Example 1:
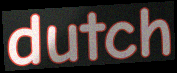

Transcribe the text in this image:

dutch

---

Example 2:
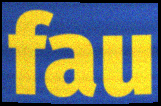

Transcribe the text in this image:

fau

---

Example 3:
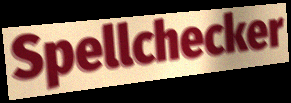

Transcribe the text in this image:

Spellchecker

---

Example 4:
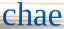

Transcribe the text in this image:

chae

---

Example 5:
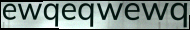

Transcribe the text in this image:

ewqeqwewq